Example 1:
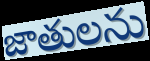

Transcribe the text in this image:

జాతులను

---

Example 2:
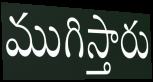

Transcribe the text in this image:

ముగిస్తారు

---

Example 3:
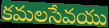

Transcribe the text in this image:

కమలసేవయు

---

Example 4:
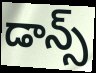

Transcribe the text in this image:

డాన్స్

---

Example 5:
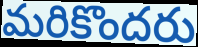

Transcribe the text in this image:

మరికొందరు